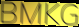
BMKG